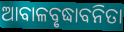
ଆବାଳବୃଦ୍ଧାବନିତା